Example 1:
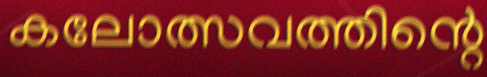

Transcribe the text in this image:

കലോത്സവത്തിന്റെ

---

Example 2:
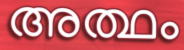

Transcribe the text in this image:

അത്ഥം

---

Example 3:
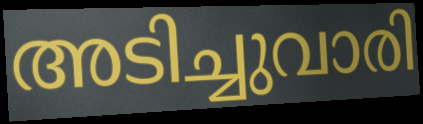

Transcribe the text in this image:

അടിച്ചുവാരി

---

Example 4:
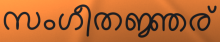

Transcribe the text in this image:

സംഗീതജ്ഞര്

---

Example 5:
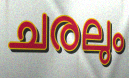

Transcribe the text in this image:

ചരലും